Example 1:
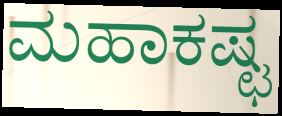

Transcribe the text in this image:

ಮಹಾಕಷ್ಟ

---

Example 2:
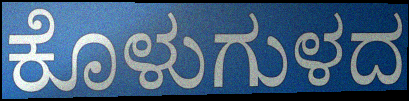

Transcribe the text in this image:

ಕೊಳುಗುಳದ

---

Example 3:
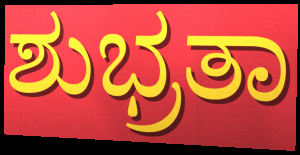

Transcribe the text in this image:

ಶುಭ್ರತಾ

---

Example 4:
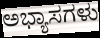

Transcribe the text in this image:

ಅಭ್ಯಾಸಗಳು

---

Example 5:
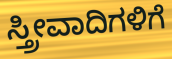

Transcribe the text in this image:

ಸ್ತ್ರೀವಾದಿಗಳಿಗೆ